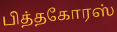
பித்தகோரஸ்